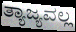
ತ್ಯಾಜ್ಯವಲ್ಲ